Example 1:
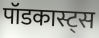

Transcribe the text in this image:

पॉडकास्ट्स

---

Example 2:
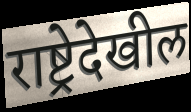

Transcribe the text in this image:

राष्ट्रेदेखील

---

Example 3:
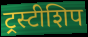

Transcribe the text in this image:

ट्रस्टीशिप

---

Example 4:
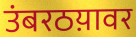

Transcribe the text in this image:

उंबरठय़ावर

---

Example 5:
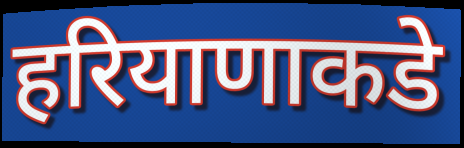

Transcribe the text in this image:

हरियाणाकडे